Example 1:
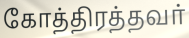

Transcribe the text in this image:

கோத்திரத்தவர்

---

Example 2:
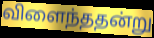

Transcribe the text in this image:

விளைந்ததன்று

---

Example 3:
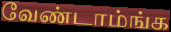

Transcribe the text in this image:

வேண்டாம்ங்க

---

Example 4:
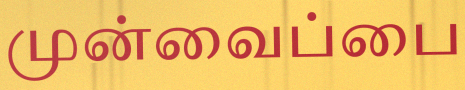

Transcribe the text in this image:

முன்வைப்பை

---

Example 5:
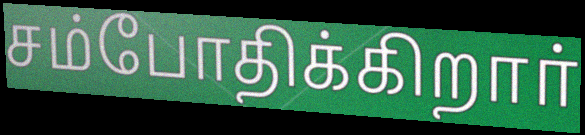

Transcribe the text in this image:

சம்போதிக்கிறார்